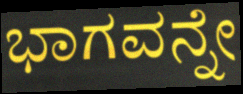
ಭಾಗವನ್ನೇ